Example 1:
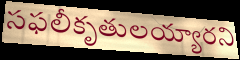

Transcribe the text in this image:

సఫలీకృతులయ్యారని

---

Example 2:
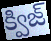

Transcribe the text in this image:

క్విజ్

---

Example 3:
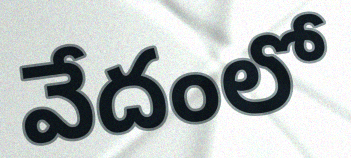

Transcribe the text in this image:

వేదంలో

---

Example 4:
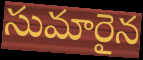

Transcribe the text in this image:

సుమారైన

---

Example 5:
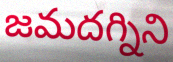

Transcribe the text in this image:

జమదగ్నిని